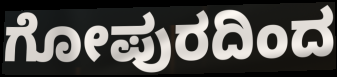
ಗೋಪುರದಿಂದ